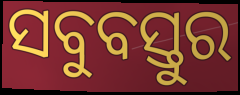
ସବୁବସ୍ତୁର